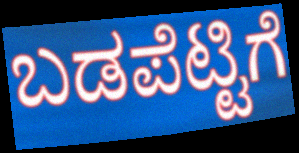
ಬಡಪೆಟ್ಟಿಗೆ